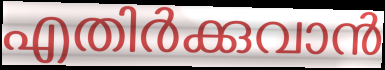
എതിർക്കുവാൻ